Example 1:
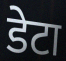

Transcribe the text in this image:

डेटा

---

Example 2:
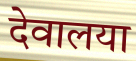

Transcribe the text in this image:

देवालया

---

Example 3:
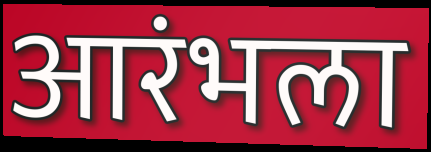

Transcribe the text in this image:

आरंभला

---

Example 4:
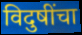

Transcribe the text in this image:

विदुषींचा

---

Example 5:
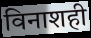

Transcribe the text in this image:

विनाशही